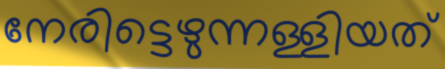
നേരിട്ടെഴുന്നള്ളിയത്